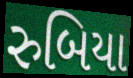
રુબિયા